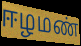
ஈழமண்